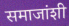
समाजांशी